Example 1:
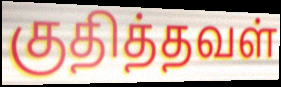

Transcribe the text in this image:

குதித்தவள்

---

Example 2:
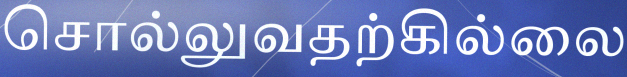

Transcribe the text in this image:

சொல்லுவதற்கில்லை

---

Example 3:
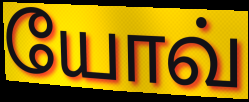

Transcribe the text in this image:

யோவ்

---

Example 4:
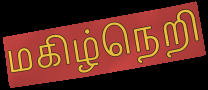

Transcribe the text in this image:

மகிழ்நெறி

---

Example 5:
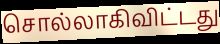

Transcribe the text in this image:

சொல்லாகிவிட்டது